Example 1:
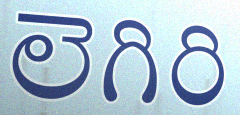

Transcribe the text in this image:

లెగిరి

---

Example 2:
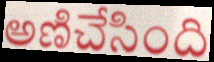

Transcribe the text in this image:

అణిచేసింది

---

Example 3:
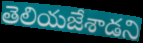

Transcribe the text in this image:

తెలియజేశాడని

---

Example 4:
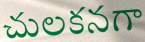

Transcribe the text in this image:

చులకనగా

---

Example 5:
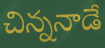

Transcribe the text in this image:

చిన్ననాడే